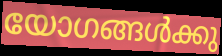
യോഗങ്ങൾക്കു